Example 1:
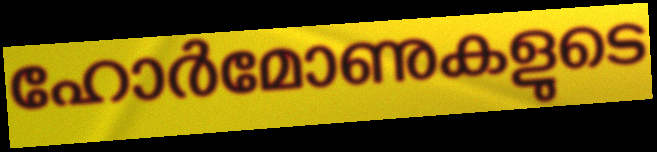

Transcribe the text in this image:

ഹോർമോണുകളുടെ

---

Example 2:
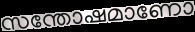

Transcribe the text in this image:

സന്തോഷമാണോ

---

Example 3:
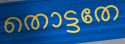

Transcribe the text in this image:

തൊട്ടതേ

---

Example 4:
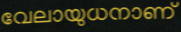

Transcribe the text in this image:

വേലായുധനാണ്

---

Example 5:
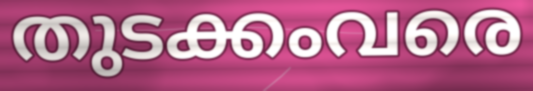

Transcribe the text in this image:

തുടക്കംവരെ